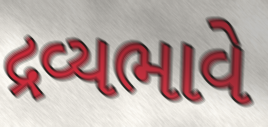
દ્રવ્યભાવે